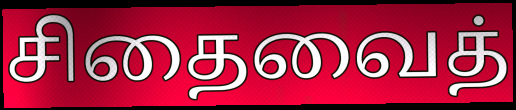
சிதைவைத்